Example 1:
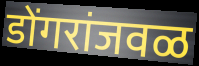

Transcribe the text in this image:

डोंगरांजवळ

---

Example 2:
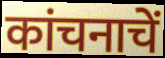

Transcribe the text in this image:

कांचनाचें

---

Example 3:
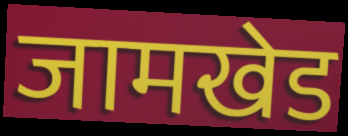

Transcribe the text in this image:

जामखेड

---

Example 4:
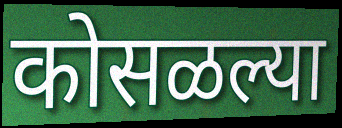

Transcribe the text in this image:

कोसळल्या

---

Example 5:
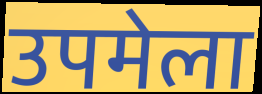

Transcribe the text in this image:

उपमेला